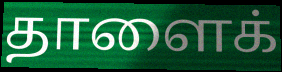
தாளைக்